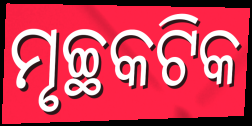
ମୃଚ୍ଛକଟିକ